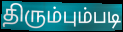
திரும்பும்படி